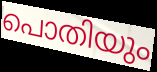
പൊതിയും